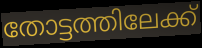
തോട്ടത്തിലേക്ക്